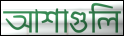
আশাগুলি